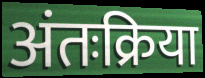
अंतःक्रिया